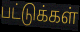
பட்டுக்கள்